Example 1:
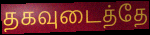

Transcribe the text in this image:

தகவுடைத்தே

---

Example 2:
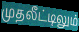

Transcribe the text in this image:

முதலீட்டிலும்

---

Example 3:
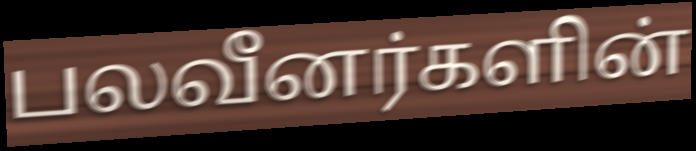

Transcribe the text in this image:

பலவீனர்களின்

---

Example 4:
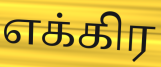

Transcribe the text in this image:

எக்கிர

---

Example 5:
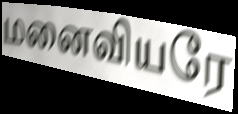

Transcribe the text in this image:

மனைவியரே